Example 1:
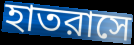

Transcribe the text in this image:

হাতরাসে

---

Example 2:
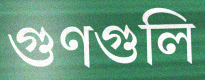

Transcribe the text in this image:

গুণগুলি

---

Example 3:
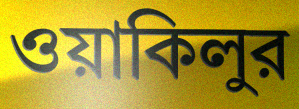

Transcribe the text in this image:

ওয়াকিলুর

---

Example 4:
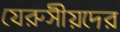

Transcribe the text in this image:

যেরুসীয়দের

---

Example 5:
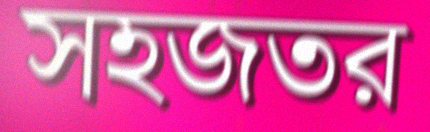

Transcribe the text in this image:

সহজতর